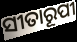
ସୀତାରୂପୀ